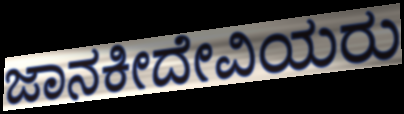
ಜಾನಕೀದೇವಿಯರು